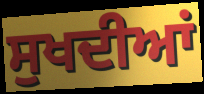
ਸੁਖਦੀਆਂ